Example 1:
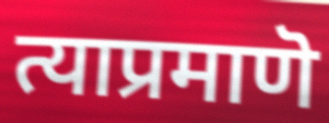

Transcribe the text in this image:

त्याप्रमाणॆ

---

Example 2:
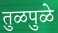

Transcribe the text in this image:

तुळपुळे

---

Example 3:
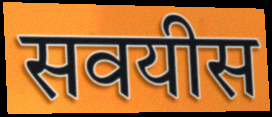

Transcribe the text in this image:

सवयीस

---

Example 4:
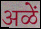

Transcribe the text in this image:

अळें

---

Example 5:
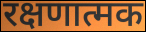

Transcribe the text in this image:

रक्षणात्मक